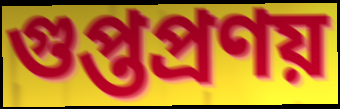
গুপ্তপ্রণয়